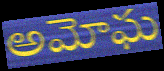
అమోఘ